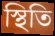
স্থিতি